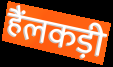
हैंलकड़ी